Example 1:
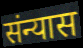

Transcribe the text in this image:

संन्यास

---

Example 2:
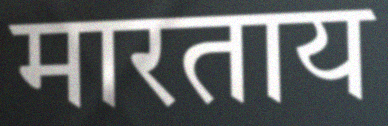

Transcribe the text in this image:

मारताय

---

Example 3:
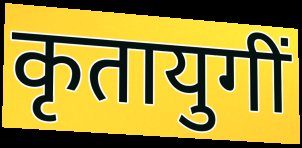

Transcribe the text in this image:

कृतायुगीं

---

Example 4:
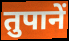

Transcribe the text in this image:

तुपानें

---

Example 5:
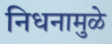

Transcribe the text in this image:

निधनामुळे